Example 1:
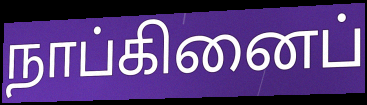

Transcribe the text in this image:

நாப்கினைப்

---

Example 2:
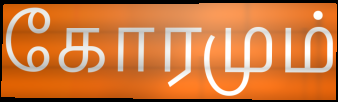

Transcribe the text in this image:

கோரமும்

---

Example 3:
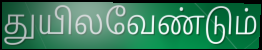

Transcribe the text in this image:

துயிலவேண்டும்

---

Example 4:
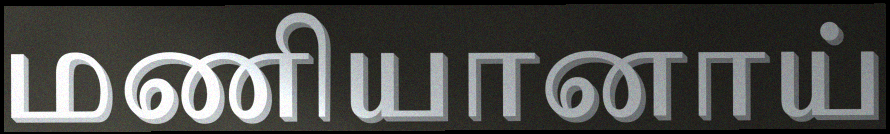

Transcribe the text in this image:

மணியானாய்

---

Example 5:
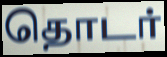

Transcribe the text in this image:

தொடர்